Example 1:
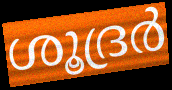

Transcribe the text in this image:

ശൂദ്രർ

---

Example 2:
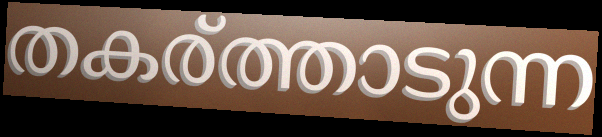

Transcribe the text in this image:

തകര്ത്താടുന്ന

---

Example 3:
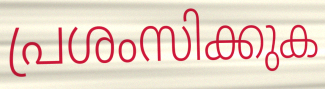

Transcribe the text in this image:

പ്രശംസിക്കുക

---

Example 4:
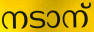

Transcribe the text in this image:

നടാന്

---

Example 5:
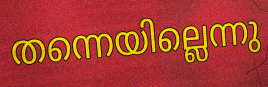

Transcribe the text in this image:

തന്നെയില്ലെന്നു